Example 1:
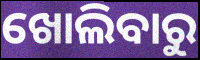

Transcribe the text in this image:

ଖୋଲିବାରୁ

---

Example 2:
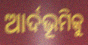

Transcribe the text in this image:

ଆର୍ଦଭୂମିକୁ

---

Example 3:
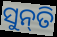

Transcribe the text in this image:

ସୁନ୍‌ତି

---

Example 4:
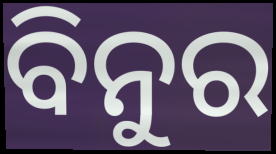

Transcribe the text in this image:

ବିନୁର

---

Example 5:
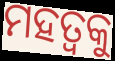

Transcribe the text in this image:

ମହତ୍ଵକୁ